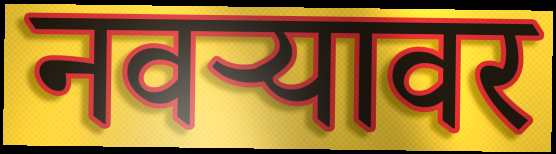
नवर्‍यावर